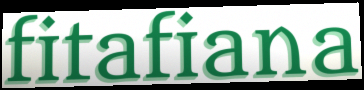
fitafiana